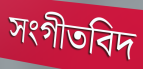
সংগীতবিদ